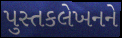
પુસ્તકલેખનને